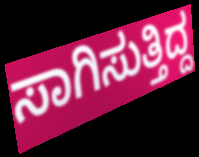
ಸಾಗಿಸುತ್ತಿದ್ದ